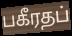
பகீரதப்